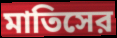
মাতিসের